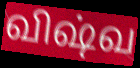
விஷ்வ